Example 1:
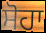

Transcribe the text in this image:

ਸੋਹਾ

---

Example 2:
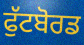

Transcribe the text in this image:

ਫੁੱਟਬੋਰਡ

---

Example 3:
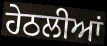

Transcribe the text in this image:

ਹੇਠਲੀਆਂ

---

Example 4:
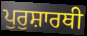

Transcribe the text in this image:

ਪੁਰੁਸ਼ਾਰਥੀ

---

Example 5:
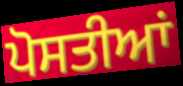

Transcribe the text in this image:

ਪੋਸਤੀਆਂ